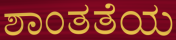
ಶಾಂತತೆಯ